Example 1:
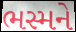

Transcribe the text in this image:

ભસ્મને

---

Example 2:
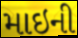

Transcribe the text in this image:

માઇની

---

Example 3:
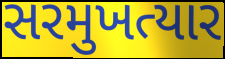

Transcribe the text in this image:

સરમુખત્યાર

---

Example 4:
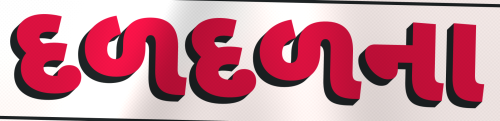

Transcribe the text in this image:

દળદળના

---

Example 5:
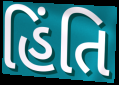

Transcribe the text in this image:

હિંતિ